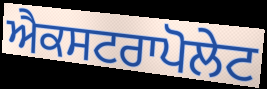
ਐਕਸਟਰਾਪੋਲੇਟ